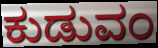
ಕುಡುವಂ